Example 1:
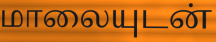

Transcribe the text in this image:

மாலையுடன்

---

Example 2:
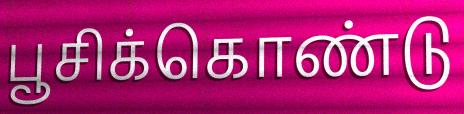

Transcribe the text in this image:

பூசிக்கொண்டு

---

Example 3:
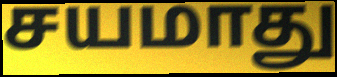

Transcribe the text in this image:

சயமாது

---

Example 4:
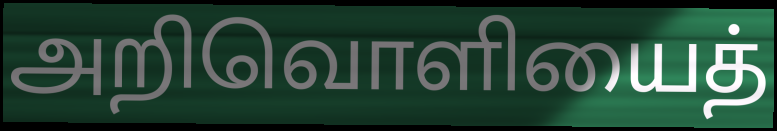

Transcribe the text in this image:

அறிவொளியைத்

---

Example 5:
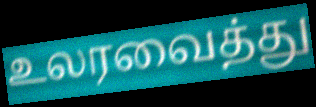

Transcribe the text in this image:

உலரவைத்து